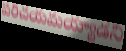
పరిచయమయ్యాడని